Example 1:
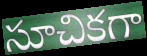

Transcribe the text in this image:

సూచికగా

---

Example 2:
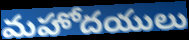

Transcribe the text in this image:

మహోదయులు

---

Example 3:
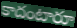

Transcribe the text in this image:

కాదంటారూ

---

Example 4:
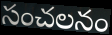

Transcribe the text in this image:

సంచలనం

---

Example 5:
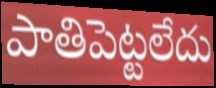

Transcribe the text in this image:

పాతిపెట్టలేదు